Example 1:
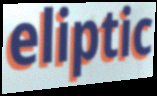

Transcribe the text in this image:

eliptic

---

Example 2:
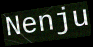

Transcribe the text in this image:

Nenju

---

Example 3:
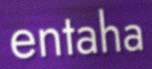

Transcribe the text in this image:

entaha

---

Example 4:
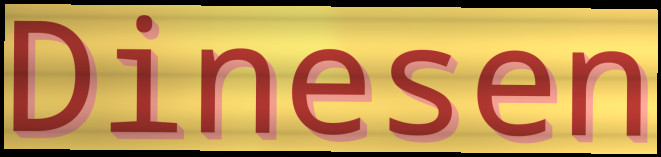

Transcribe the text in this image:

Dinesen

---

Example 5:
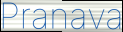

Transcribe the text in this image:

Pranava